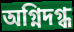
অগ্নিদগ্ধ